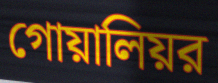
গোয়ালিয়র